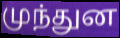
முந்துன